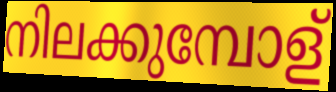
നിലക്കുമ്പോള്